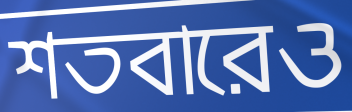
শতবারেও